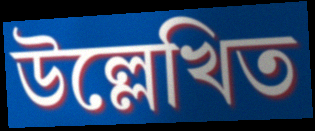
উল্লেখিত